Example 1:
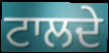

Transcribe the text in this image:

ਟਾਲਦੇ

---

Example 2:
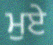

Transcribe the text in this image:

ਮੁਏ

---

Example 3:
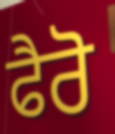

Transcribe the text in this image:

ਫੈਰੋ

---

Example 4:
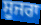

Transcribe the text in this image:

ਸੂਜਰਾ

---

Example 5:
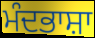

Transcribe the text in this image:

ਮੰਦਭਾਸ਼ਾ